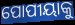
ପୋପୀୟାକୁ